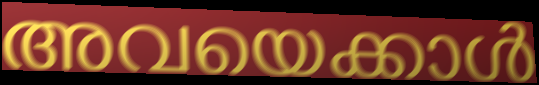
അവയെക്കാൾ